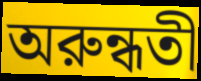
অরুন্ধতী